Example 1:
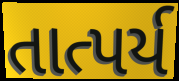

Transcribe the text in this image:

તાત્પર્ય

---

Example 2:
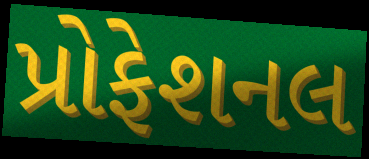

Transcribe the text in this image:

પ્રોફેશનલ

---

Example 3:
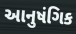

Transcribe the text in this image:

આનુષંગિક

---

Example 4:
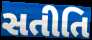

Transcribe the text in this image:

સતીતિ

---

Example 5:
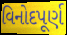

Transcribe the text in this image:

વિનોદપૂર્ણ